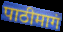
पाठीमागं